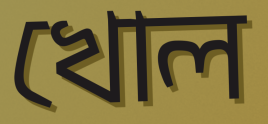
খোল